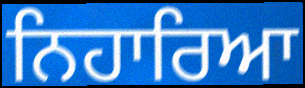
ਨਿਹਾਰਿਆ